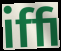
iffi